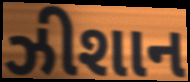
ઝીશાન